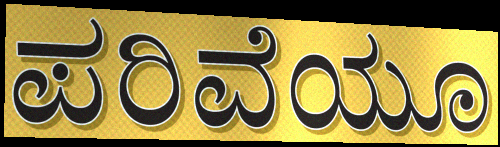
ಪರಿವೆಯೂ